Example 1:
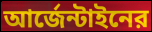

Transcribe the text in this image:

আর্জেন্টাইনের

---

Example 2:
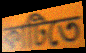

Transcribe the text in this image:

কাটিতে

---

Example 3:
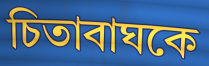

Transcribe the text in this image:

চিতাবাঘকে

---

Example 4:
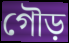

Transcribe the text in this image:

গৌড়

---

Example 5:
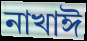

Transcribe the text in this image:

নাখাঈ